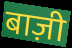
बाज़ी